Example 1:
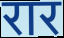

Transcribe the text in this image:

रार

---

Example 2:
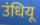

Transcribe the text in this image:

उंधियू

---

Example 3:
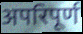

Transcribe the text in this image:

अपरिपूर्ण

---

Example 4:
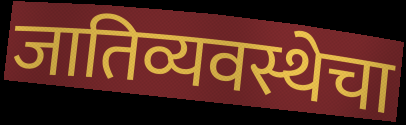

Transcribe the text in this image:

जातिव्यवस्थेचा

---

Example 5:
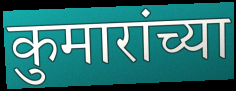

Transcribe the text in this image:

कुमारांच्या